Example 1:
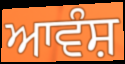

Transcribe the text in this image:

ਆਵੰਸ਼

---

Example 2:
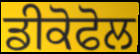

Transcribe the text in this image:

ਡੀਕੋਫੋਲ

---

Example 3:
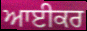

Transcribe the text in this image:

ਆਈਕਰ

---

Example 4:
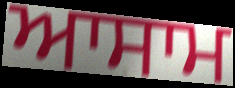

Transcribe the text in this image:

ਆਸਾਮ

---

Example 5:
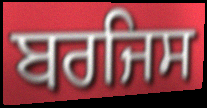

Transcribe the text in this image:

ਬਰਜਿਸ